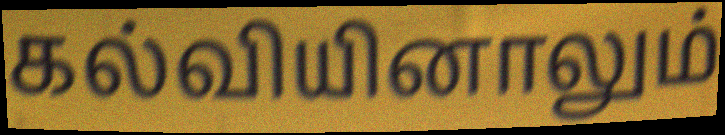
கல்வியினாலும்